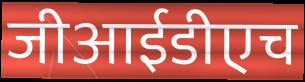
जीआईडीएच